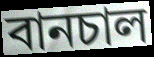
বানচাল